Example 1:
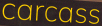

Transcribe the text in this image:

carcass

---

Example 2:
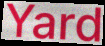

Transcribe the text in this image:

Yard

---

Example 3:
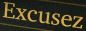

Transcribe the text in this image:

Excusez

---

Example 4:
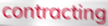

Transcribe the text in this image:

contracting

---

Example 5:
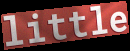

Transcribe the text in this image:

little